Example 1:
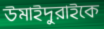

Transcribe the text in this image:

উমাইদুরাইকে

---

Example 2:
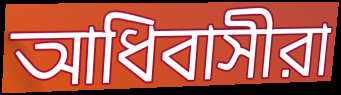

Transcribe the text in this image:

আধিবাসীরা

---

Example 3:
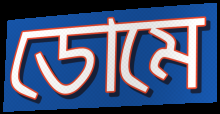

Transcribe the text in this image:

ডোমে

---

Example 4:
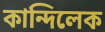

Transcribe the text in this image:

কান্দিলেক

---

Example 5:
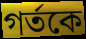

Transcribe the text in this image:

গর্তকে